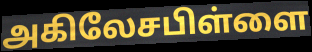
அகிலேசபிள்ளை